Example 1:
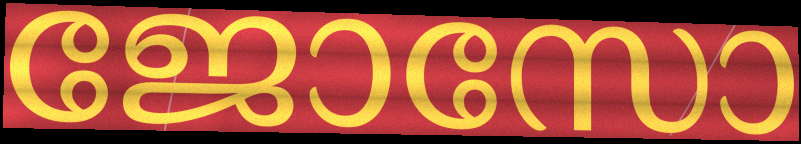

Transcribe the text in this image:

ജോസോ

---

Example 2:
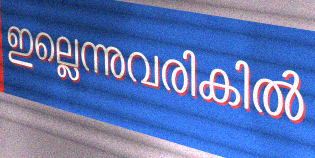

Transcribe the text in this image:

ഇല്ലെന്നുവരികിൽ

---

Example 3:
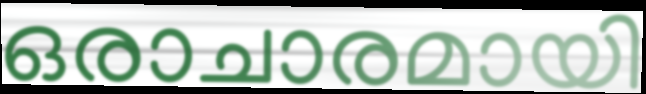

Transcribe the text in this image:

ഒരാചാരമായി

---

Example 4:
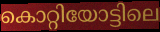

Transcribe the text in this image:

കൊറ്റിയോട്ടിലെ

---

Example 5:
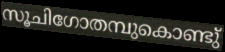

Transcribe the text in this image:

സൂചിഗോതമ്പുകൊണ്ടു്